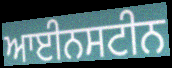
ਆਈਨਸਟੀਨ